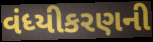
વંધ્યીકરણની